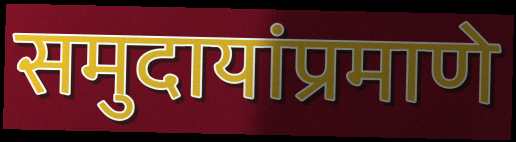
समुदायांप्रमाणे